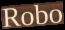
Robo